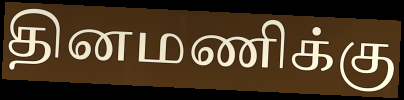
தினமணிக்கு